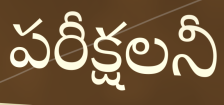
పరీక్షలనీ